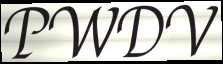
PWDV